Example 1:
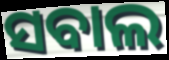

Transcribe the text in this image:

ସବାଲ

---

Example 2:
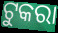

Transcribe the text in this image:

ଟୁକରା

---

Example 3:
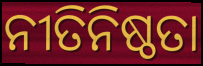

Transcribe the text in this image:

ନୀତିନିଷ୍ଠତା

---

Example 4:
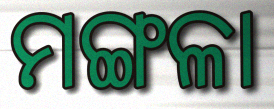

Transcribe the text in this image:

ମଙ୍ଗଳା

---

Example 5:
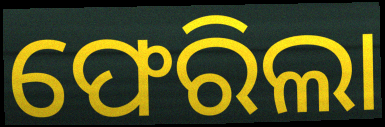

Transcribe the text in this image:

ଫେରିଲା